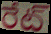
రేట్